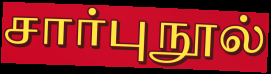
சார்புநூல்